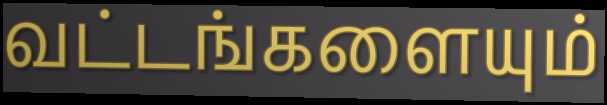
வட்டங்களையும்